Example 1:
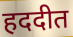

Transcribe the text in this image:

हददीत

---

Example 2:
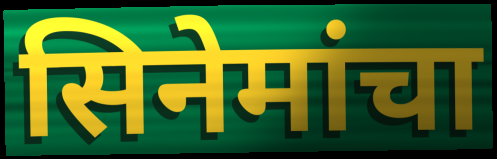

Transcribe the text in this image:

सिनेमांचा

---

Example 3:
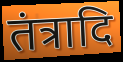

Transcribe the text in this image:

तंत्रादि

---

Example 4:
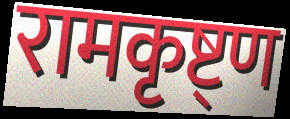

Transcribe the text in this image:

रामकृष्ट्ण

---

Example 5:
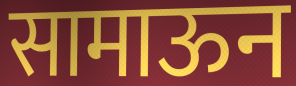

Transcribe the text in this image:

सामाऊन